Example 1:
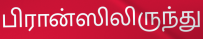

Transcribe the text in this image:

பிரான்ஸிலிருந்து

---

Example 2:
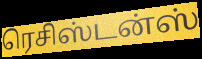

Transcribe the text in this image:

ரெசிஸ்டன்ஸ்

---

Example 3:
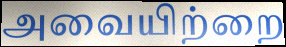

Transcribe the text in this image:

அவையிற்றை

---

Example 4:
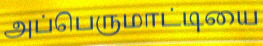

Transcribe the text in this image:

அப்பெருமாட்டியை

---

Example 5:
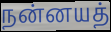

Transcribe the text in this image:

நன்னயத்